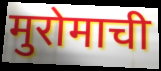
मुरोमाची